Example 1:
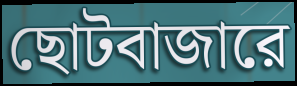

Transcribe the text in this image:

ছোটবাজারে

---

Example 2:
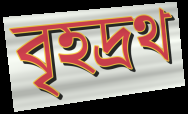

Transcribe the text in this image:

বৃহদ্রথ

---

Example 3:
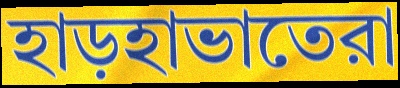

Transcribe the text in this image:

হাড়হাভাতেরা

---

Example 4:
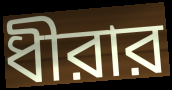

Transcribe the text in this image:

ধীরার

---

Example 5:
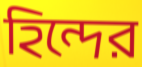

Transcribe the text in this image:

হিন্দের